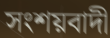
সংশয়বাদী